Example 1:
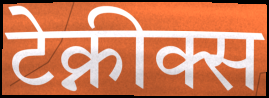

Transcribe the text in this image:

टेक्नीक्स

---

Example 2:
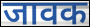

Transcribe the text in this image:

जावक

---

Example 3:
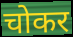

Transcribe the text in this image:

चोकर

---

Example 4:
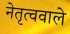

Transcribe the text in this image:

नेतृत्ववाले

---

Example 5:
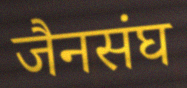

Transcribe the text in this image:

जैनसंघ